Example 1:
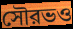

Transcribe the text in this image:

সৌরভও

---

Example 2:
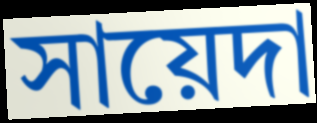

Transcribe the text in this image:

সায়েদা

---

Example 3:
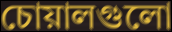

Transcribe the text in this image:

চোয়ালগুলো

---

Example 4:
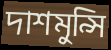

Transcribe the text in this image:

দাশমুন্সি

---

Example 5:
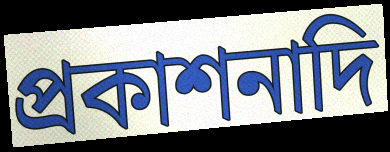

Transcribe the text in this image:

প্রকাশনাদি